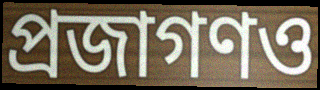
প্রজাগণও